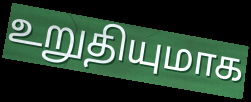
உறுதியுமாக